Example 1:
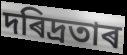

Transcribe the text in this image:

দৰিদ্ৰতাৰ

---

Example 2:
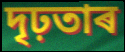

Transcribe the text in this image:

দৃঢ়তাৰ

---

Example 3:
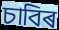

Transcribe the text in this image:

চাবিৰ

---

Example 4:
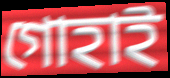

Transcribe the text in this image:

গোহাই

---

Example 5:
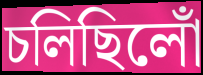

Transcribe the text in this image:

চলিছিলোঁ